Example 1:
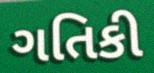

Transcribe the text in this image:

ગતિકી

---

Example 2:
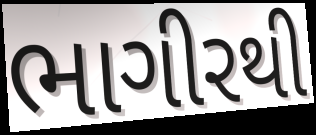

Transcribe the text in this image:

ભાગીરથી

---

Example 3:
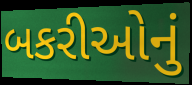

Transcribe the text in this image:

બકરીઓનું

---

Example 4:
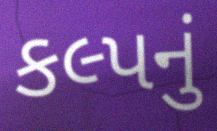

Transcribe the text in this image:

કલ્પનું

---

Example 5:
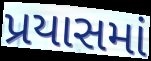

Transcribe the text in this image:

પ્રયાસમાં